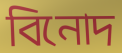
বিনোদ